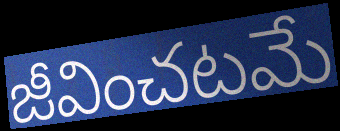
జీవించటమే